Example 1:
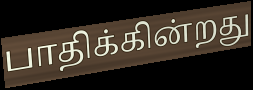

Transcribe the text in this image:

பாதிக்கின்றது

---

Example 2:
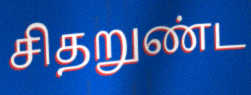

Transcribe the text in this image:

சிதறுண்ட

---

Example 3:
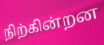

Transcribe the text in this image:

நிற்கின்றன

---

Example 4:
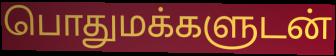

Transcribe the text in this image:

பொதுமக்களுடன்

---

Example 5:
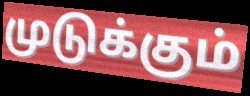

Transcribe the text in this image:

முடுக்கும்